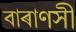
বাৰাণসী